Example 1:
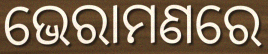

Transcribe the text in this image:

ଭେରାମଣରେ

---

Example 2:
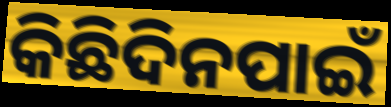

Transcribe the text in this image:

କିଛିଦିନପାଇଁ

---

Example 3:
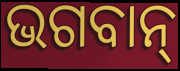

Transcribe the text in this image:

ଭଗବାନ୍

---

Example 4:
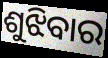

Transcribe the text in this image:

ଶୁଝିବାର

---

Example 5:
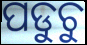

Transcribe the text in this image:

ପଡୁଚୁ